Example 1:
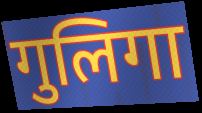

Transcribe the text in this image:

गुलिगा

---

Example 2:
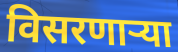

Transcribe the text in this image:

विसरणाऱ्या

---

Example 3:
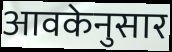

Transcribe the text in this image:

आवकेनुसार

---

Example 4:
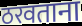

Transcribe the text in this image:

ठरवताना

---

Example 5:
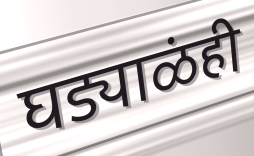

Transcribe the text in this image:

घड्याळंही